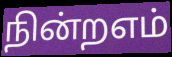
நின்றஎம்